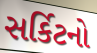
સર્કિટનો